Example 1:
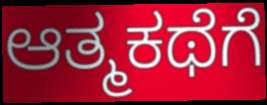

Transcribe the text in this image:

ಆತ್ಮಕಥೆಗೆ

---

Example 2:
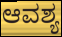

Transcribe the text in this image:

ಆವಶ್ಯ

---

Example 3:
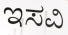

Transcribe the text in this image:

ಇಸವಿ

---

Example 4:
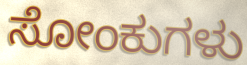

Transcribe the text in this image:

ಸೋಂಕುಗಳು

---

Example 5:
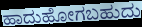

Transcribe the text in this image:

ಹಾದುಹೋಗಬಹುದು